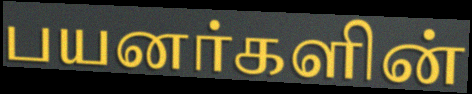
பயனர்களின்